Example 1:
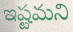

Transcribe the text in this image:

ఇష్టమని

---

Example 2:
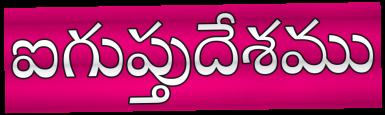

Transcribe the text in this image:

ఐగుప్తుదేశము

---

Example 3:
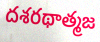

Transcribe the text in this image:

దశరథాత్మజ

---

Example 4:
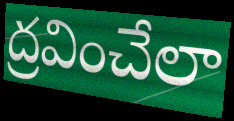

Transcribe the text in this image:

ద్రవించేలా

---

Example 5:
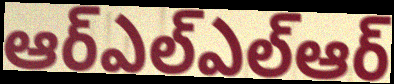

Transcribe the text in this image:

ఆర్ఎల్ఎల్ఆర్